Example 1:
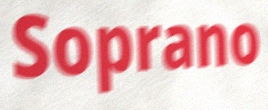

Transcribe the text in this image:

Soprano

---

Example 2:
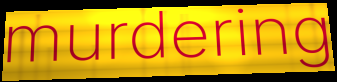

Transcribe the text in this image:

murdering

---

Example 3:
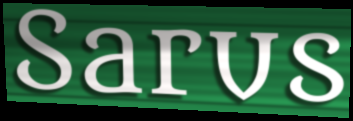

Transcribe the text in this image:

Sarus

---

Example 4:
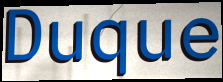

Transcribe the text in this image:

Duque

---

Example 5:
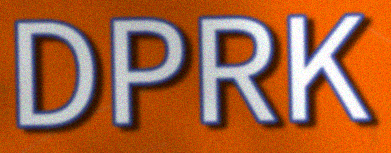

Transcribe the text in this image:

DPRK